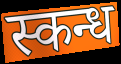
स्कन्ध